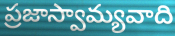
ప్రజాస్వామ్యవాది